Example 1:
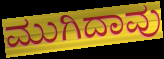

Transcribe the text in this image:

ಮುಗಿದಾವು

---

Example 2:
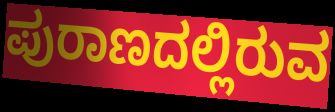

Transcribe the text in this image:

ಪುರಾಣದಲ್ಲಿರುವ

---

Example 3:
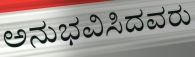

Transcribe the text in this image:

ಅನುಭವಿಸಿದವರು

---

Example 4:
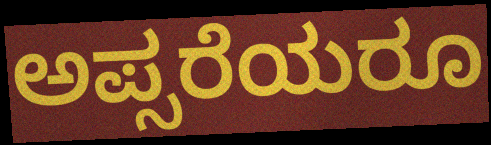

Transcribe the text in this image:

ಅಪ್ಸರೆಯರೂ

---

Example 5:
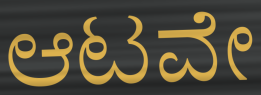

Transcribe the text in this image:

ಆಟವೇ